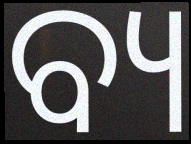
ବ୍ୟ